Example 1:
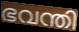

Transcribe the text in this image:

ഭവന്തി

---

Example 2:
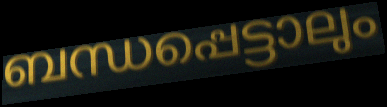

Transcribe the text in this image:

ബന്ധപ്പെട്ടാലും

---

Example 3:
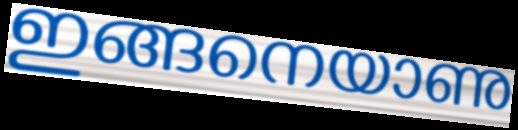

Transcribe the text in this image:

ഇങ്ങനെയാണു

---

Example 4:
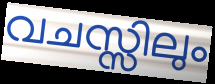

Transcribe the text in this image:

വചസ്സിലും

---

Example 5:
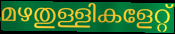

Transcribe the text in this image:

മഴതുള്ളികളേറ്റ്